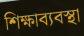
শিক্ষাব্যবস্থা